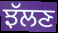
ਝੱਲਣ